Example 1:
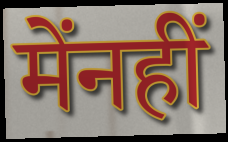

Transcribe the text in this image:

मेंनहीं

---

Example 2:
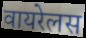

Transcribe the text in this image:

वायरेलस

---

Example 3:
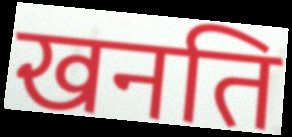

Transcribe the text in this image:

खनति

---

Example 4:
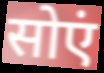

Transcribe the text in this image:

सोएं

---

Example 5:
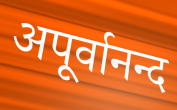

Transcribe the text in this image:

अपूर्वानन्द